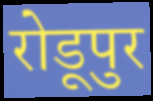
रोडूपुर